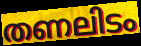
തണലിടം